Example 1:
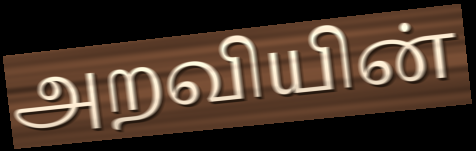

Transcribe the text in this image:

அறவியின்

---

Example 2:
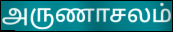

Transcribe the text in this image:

அருணாசலம்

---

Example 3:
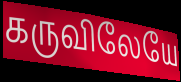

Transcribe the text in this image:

கருவிலேயே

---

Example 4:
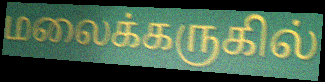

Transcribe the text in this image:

மலைக்கருகில்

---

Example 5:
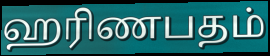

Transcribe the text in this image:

ஹரிணபதம்